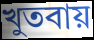
খুতবায়